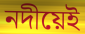
নদীয়েই